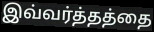
இவ்வர்த்தத்தை